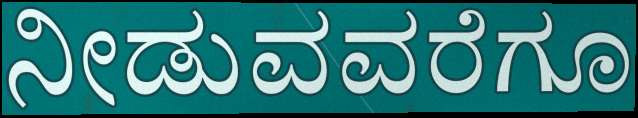
ನೀಡುವವರೆಗೂ